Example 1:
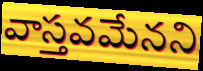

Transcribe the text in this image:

వాస్తవమేనని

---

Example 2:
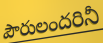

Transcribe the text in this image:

పౌరులందరినీ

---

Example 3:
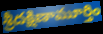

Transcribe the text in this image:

శ్రీదక్షిణామూర్తిం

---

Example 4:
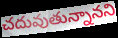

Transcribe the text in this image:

చదువుతున్నానని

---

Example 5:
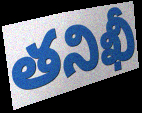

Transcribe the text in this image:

తనిఖీ